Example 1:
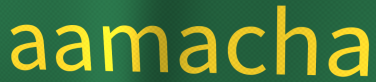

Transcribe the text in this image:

aamacha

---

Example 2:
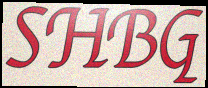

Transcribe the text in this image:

SHBG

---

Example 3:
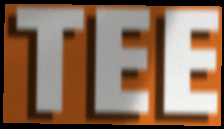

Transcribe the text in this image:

TEE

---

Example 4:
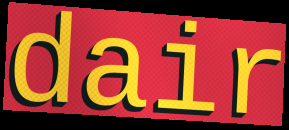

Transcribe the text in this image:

dair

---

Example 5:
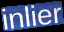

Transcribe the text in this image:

inlier